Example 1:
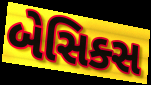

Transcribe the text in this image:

બેસિક્સ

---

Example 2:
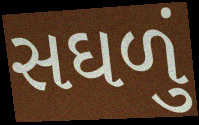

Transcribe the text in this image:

સઘળું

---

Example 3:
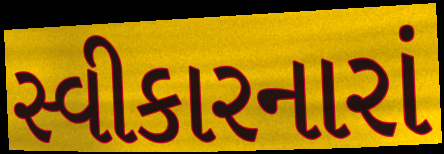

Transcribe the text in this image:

સ્વીકારનારાં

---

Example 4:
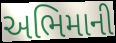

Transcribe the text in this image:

અભિમાની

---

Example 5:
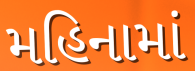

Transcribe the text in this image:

મહિનામાં